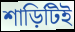
শাড়িটিই